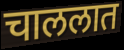
चाललात